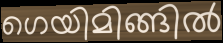
ഗെയിമിങ്ങിൽ